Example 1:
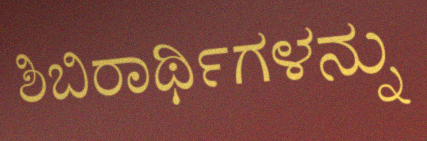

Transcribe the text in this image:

ಶಿಬಿರಾರ್ಥಿಗಳನ್ನು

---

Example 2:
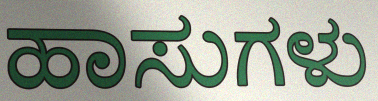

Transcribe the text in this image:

ಹಾಸುಗಳು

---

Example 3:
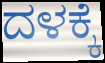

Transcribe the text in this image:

ದಳಕ್ಕೆ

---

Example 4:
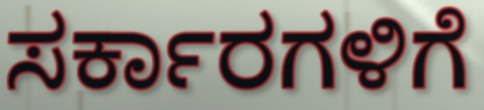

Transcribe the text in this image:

ಸರ್ಕಾರಗಳಿಗೆ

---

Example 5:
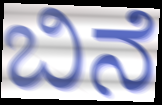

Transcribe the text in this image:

ಬಿನೆ